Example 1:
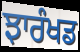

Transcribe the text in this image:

ਝਾਰੰਖਡ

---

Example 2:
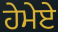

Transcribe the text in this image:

ਹੇਮੇਏ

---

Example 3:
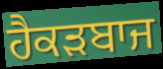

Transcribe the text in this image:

ਹੈਕੜਬਾਜ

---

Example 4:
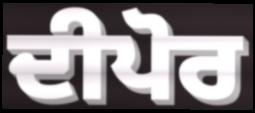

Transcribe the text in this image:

ਦੀਪੋਰ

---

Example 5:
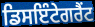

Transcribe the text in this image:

ਡਿਸਇੰਟੇਗਰੈਂਟ